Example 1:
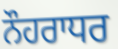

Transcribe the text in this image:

ਨੌਹਰਾਧਰ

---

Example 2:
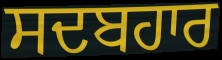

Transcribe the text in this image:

ਸਦਬਹਾਰ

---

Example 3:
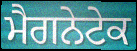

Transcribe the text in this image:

ਮੈਗਨੇਟੇਕ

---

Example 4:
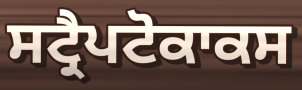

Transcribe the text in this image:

ਸਟ੍ਰੈਪਟੋਕਾਕਸ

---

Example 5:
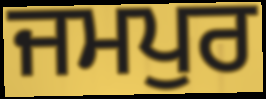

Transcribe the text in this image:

ਜਮਪੁਰ